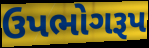
ઉપભોગરૂપ